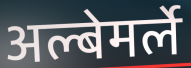
अल्बेमर्ले